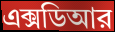
এক্সডিআর